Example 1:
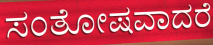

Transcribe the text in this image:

ಸಂತೋಷವಾದರೆ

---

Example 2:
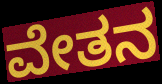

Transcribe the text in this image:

ವೇತನ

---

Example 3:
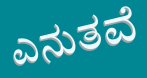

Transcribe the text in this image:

ಎನುತವೆ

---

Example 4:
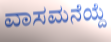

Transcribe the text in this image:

ವಾಸಮನೆಯ್ದೆ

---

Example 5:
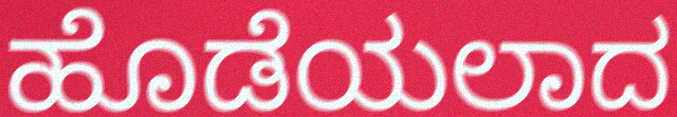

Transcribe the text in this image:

ಹೊಡೆಯಲಾದ